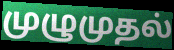
முழுமுதல்